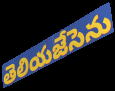
తెలియజేసెను